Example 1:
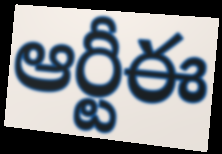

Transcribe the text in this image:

ఆర్టీఈ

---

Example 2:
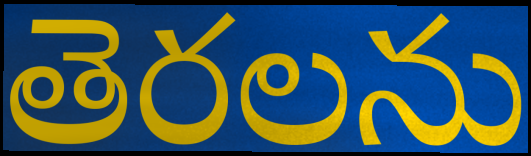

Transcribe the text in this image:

తెరలను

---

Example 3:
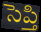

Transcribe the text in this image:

సెప్తి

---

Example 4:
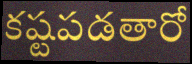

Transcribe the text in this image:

కష్టపడతారో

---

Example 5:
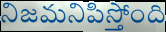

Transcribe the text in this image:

నిజమనిపిస్తోంది